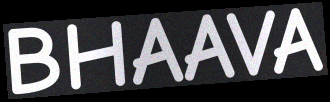
BHAAVA